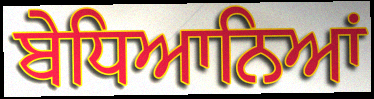
ਬੇਧਿਆਨਿਆਂ